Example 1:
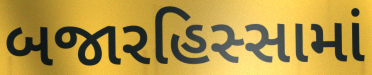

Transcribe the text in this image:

બજારહિસ્સામાં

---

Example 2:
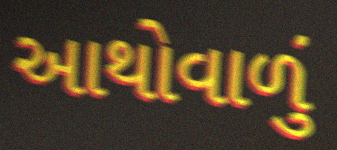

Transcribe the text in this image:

આથોવાળું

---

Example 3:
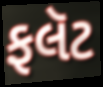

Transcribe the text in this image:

ફલૅટ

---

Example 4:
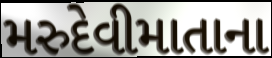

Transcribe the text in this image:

મરુદેવીમાતાના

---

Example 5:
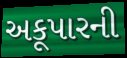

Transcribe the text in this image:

અકૂપારની